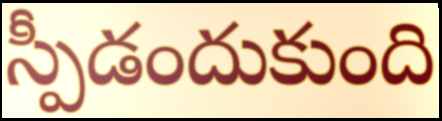
స్పీడందుకుంది